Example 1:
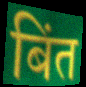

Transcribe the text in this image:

बिंत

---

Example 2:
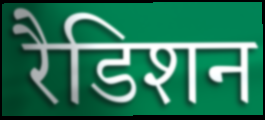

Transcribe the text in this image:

रैडिशन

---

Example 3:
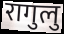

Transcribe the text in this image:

रागुलु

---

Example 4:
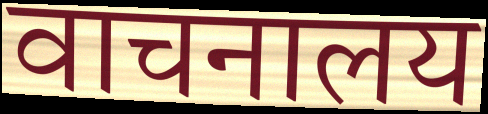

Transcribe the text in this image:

वाचनालय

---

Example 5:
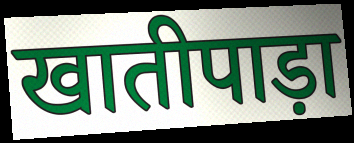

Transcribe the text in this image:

खातीपाड़ा